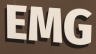
EMG